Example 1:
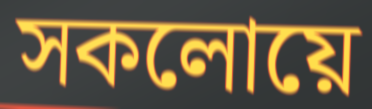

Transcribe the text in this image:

সকলোয়ে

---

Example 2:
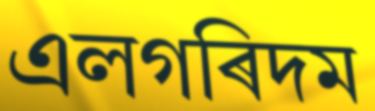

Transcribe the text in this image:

এলগৰিদম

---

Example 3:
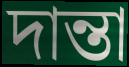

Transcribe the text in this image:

দান্তা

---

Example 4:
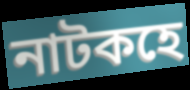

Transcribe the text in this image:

নাটকহে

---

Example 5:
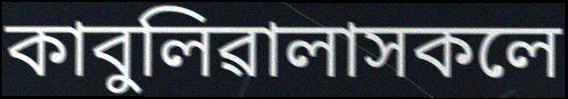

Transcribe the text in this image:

কাবুলিৱালাসকলে